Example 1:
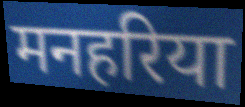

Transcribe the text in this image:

मनहरिया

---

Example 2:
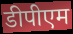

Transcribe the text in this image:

डीपीएम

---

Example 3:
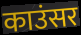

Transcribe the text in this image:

काउंसर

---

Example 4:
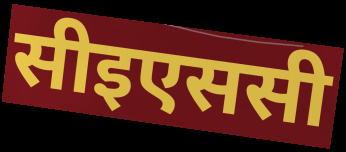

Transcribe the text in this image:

सीइएससी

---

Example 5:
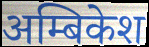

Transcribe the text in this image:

अम्बिकेश